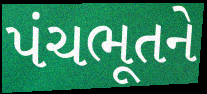
પંચભૂતને